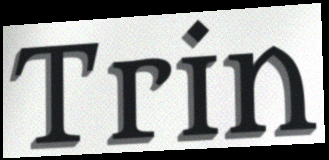
Trin